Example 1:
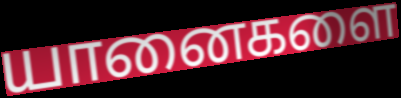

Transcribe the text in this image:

யானைகளை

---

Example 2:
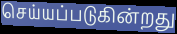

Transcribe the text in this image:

செய்யப்படுகின்றது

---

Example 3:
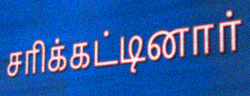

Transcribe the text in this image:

சரிக்கட்டினார்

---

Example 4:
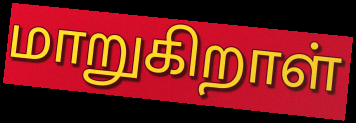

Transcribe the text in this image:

மாறுகிறாள்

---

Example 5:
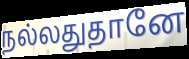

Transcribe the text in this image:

நல்லதுதானே